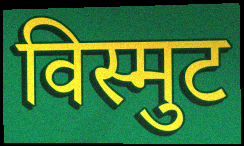
विस्मुट